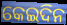
କେଇଦିନ